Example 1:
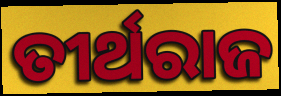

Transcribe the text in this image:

ତୀର୍ଥରାଜ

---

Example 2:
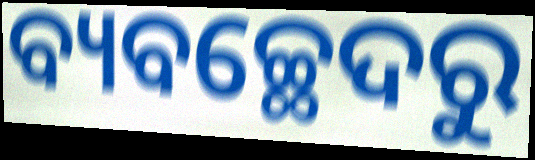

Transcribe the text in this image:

ବ୍ୟବଚ୍ଛେଦରୁ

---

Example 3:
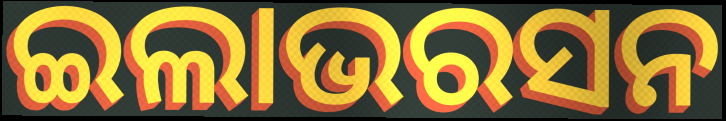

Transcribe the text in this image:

ଇଲାଭରସନ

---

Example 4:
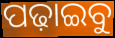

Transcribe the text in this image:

ପଢ଼ାଇବୁ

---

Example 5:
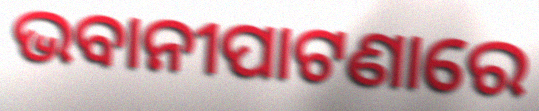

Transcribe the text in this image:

ଭବାନୀପାଟଣାରେ